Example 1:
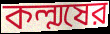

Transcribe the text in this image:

কল্মষের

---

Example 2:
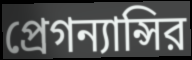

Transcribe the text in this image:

প্রেগন্যান্সির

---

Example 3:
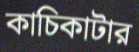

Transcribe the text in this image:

কাচিকাটার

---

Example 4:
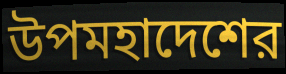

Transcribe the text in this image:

উপমহাদেশের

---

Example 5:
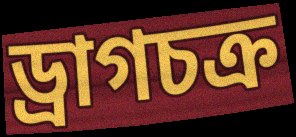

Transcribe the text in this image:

ড্রাগচক্র